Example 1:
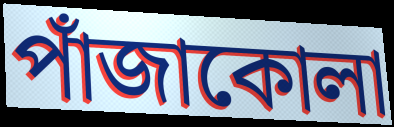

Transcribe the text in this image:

পাঁজাকোলা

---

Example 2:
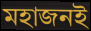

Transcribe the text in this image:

মহাজনই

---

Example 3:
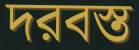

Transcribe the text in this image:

দরবস্ত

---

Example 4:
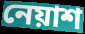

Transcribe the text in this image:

নেয়াশ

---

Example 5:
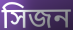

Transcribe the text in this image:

সিজন